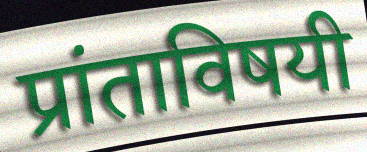
प्रांताविषयी